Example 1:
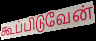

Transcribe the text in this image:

கூப்பிடுவேன்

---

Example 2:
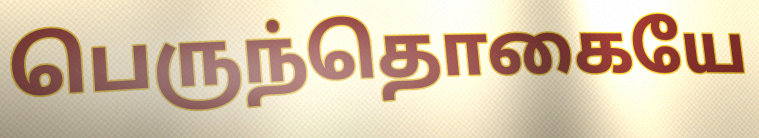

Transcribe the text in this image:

பெருந்தொகையே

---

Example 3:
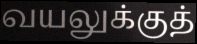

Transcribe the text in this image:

வயலுக்குத்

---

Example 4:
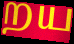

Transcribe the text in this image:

றய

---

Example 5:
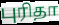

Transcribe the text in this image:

புரிதா